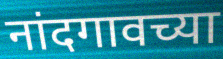
नांदगावच्या